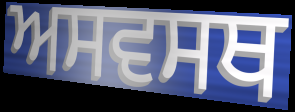
ਅਸਵਸਥ